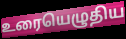
உரையெழுதிய